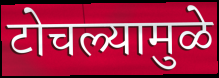
टोचल्यामुळे